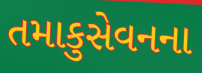
તમાકુસેવનના